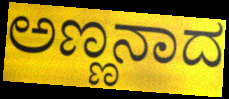
ಅಣ್ಣನಾದ